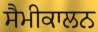
ਸੈਮੀਕਾਲਨ